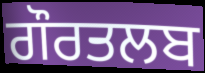
ਗੌਰਤਲਬ